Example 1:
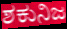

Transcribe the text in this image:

ಶಕುನಿಜ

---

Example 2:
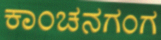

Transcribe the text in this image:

ಕಾಂಚನಗಂಗ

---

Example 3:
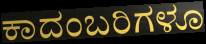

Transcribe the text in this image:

ಕಾದಂಬರಿಗಳೂ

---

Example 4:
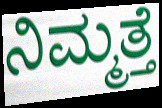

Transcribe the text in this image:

ನಿಮ್ಮತ್ತೆ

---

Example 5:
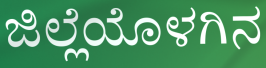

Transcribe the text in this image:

ಜಿಲ್ಲೆಯೊಳಗಿನ